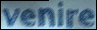
venire